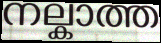
നല്കാത്ത